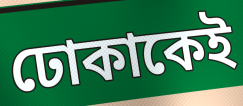
ঢোকাকেই